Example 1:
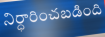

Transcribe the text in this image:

నిర్ధారించబడింది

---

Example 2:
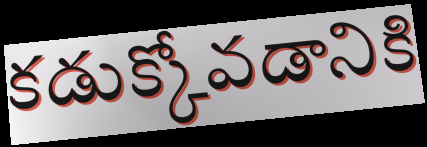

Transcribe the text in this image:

కడుక్కోవడానికి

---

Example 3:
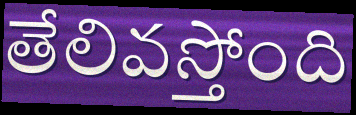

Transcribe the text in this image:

తేలివస్తోంది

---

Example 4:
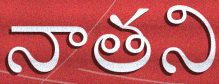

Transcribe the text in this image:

నాతని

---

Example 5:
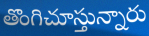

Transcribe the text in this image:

తొంగిచూస్తున్నారు